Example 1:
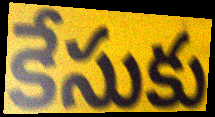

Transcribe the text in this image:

కేసుకు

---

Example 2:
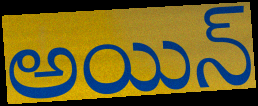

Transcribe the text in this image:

అయిన్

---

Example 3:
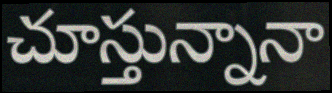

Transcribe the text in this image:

చూస్తున్నానా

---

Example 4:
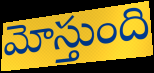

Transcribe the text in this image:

మోస్తుంది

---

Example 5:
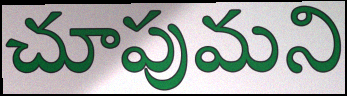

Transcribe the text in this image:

చూపుమని